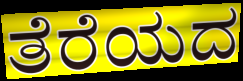
ತೆರೆಯದ